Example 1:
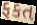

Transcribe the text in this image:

ફકત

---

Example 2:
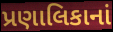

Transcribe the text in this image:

પ્રણાલિકાનાં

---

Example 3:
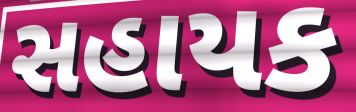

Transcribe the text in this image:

સહાયક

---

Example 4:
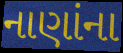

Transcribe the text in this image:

નાણાંના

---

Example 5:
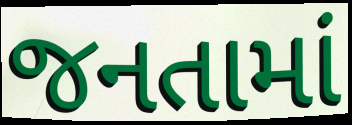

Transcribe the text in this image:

જનતામાં